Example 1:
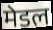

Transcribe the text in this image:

मेडल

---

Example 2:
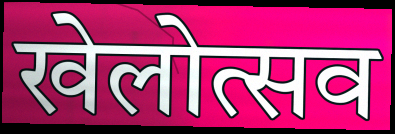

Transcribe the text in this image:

खेलोत्सव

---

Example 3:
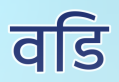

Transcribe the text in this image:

वडि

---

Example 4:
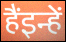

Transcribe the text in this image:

हैंइन्हें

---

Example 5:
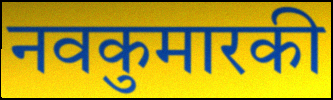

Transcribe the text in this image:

नवकुमारकी